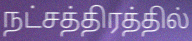
நட்சத்திரத்தில்